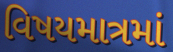
વિષયમાત્રમાં